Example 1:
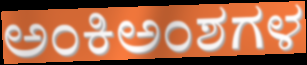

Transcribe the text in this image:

ಅಂಕಿಅಂಶಗಳ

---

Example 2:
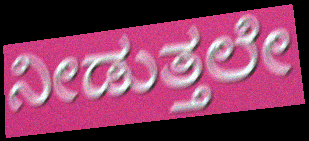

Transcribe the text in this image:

ನೀಡುತ್ತಲೇ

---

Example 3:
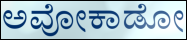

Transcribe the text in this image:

ಅವೋಕಾಡೋ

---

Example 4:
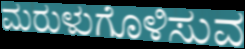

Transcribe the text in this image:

ಮರುಳುಗೊಳಿಸುವ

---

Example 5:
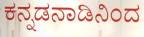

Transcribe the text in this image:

ಕನ್ನಡನಾಡಿನಿಂದ